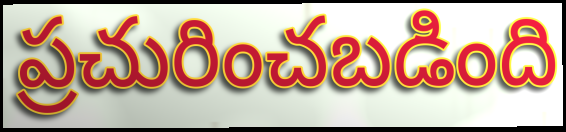
ప్రచురించబడింది